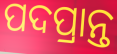
ପଦପ୍ରାନ୍ତ